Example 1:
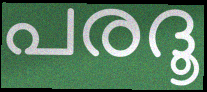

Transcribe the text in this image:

പരദൂ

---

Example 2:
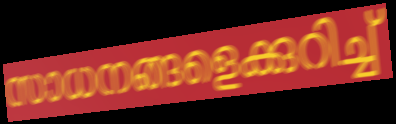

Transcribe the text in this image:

സാധനങ്ങളെക്കുറിച്ച്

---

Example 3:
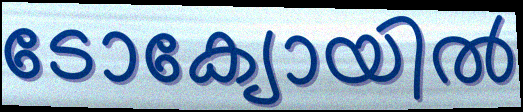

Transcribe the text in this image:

ടോക്യോയിൽ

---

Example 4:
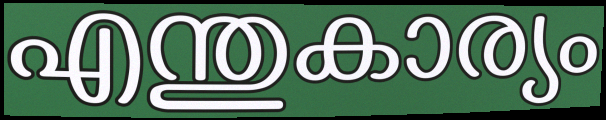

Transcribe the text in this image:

എന്തുകാര്യം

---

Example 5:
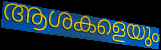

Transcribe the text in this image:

ആശകളെയും